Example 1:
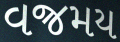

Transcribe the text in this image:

વજ્રમય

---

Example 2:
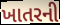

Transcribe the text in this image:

ખાતરની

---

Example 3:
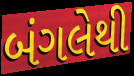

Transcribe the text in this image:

બંગલેથી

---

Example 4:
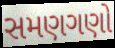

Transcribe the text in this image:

સમણગણો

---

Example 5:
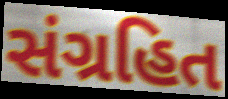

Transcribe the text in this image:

સંગ્રહિત